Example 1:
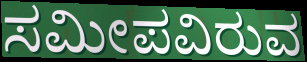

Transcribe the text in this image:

ಸಮೀಪವಿರುವ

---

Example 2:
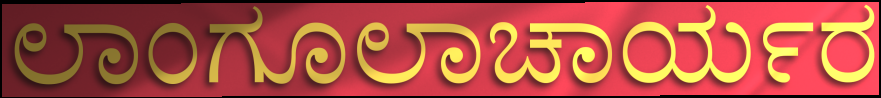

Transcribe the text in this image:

ಲಾಂಗೂಲಾಚಾರ್ಯರ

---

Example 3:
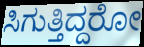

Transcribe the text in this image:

ಸಿಗುತ್ತಿದ್ದರೋ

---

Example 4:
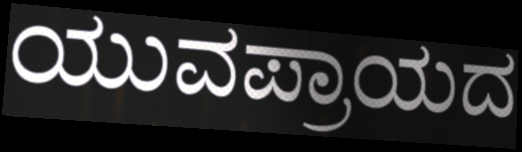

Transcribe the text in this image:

ಯುವಪ್ರಾಯದ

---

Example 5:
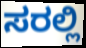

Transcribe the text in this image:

ಸರಲ್ಲಿ